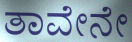
ತಾವೇನೇ